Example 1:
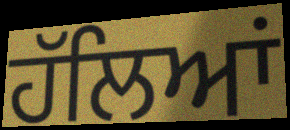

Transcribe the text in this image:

ਹੱਲਿਆਂ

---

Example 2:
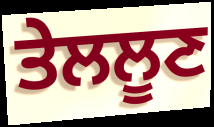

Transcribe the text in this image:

ਤੇਲਲੂਣ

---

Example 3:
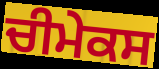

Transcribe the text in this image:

ਚੀਮੇਕਸ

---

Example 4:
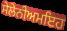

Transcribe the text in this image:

ਸੇਲੇਨੀਅਮਇਹ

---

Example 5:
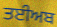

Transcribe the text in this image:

ਤਈਅਬ